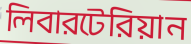
লিবারটেরিয়ান